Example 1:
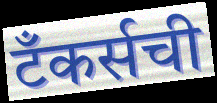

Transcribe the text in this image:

टँकर्सची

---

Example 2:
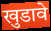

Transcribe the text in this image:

खुडावे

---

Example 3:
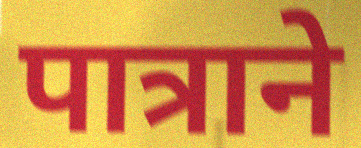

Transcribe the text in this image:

पात्राने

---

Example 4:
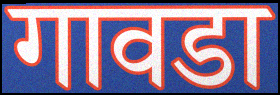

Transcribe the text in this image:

गावडा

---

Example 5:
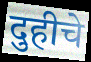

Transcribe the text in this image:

दुहीचे